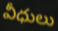
వీధులు